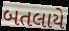
બતલાયે